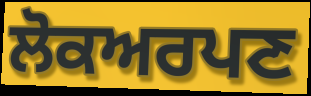
ਲੋਕਅਰਪਣ